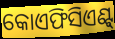
କୋଏଫିସିଏଣ୍ଟ୍